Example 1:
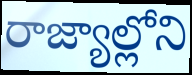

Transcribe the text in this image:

రాజ్యాల్లోని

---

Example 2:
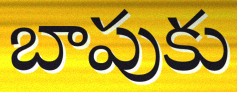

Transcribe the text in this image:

బాపుకు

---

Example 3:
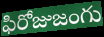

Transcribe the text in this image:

ఫిరోజుజంగు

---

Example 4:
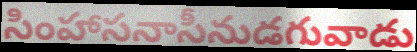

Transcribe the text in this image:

సింహాసనాసీనుడగువాడు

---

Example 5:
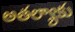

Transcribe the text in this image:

అతల్యాకు